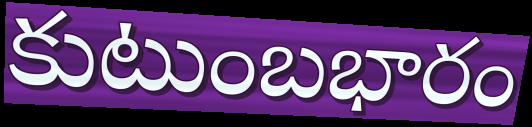
కుటుంబభారం